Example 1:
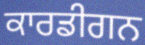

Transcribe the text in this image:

ਕਾਰਡੀਗਨ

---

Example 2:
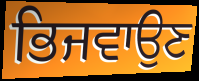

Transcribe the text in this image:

ਭਿਜਵਾਉਣ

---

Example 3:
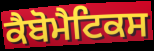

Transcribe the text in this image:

ਕੈਬੋਮੈਟਿਕਸ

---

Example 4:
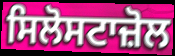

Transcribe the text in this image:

ਸਿਲੋਸਟਾਜ਼ੋਲ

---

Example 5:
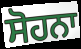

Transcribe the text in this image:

ਸੋਹਨਾ